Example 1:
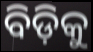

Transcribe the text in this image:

ବିଡ଼ିକୁ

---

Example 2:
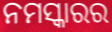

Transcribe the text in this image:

ନମସ୍କାରର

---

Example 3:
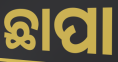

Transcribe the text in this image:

ଛାପା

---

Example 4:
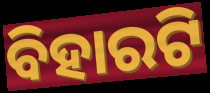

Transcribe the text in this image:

ବିହାରଟି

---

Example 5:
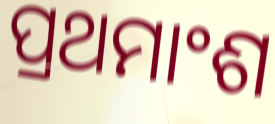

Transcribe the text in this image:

ପ୍ରଥମାଂଶ